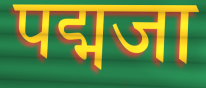
पद्मजा